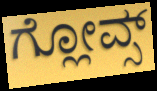
ಗ್ಲೋವ್ಸ್